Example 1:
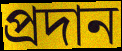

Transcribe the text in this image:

প্রদান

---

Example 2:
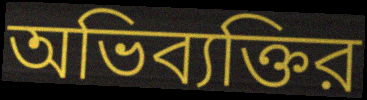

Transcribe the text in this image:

অভিব্যক্তির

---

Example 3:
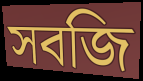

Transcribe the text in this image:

সবজি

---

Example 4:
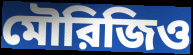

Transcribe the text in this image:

মৌরিজিও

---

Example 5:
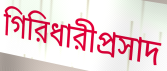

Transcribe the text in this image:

গিরিধারীপ্রসাদ